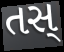
તસ્